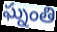
ఘ్నంతి